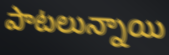
పాటలున్నాయి